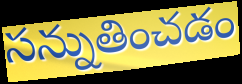
సన్నుతించడం